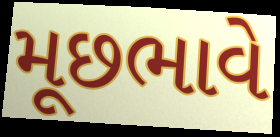
મૂછભાવે